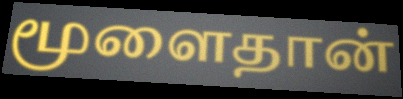
மூளைதான்